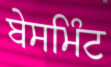
ਬੇਸਮਿੰਟ